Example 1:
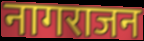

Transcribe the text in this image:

नागराजन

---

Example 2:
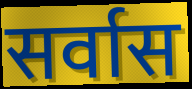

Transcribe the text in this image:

सर्वास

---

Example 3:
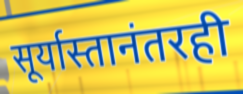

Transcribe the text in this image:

सूर्यास्तानंतरही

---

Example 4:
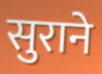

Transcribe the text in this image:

सुराने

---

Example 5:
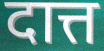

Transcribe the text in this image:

दात्त